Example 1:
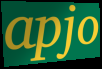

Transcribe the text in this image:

apjo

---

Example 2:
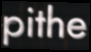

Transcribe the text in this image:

pithe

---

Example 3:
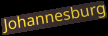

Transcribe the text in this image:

Johannesburg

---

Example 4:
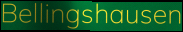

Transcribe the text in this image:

Bellingshausen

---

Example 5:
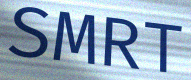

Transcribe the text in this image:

SMRT